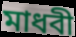
মাধবী